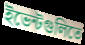
ইভেন্টগুলিতে